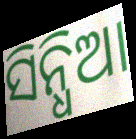
ସିନ୍ଧିଆ